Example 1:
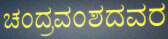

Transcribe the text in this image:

ಚಂದ್ರವಂಶದವರ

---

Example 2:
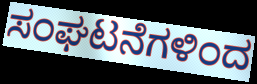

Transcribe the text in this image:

ಸಂಘಟನೆಗಳಿಂದ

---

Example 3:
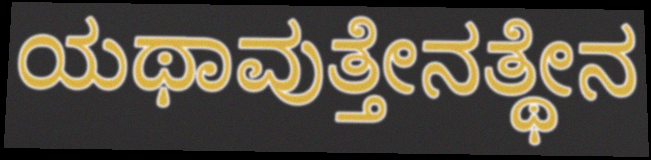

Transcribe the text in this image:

ಯಥಾವುತ್ತೇನತ್ಥೇನ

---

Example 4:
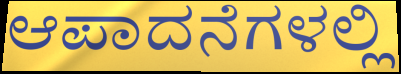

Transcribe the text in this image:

ಆಪಾದನೆಗಳಲ್ಲಿ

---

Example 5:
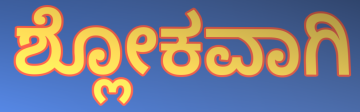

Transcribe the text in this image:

ಶ್ಲೋಕವಾಗಿ